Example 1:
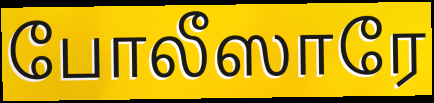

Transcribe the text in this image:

போலீஸாரே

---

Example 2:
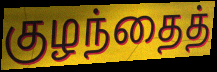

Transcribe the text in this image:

குழந்தைத்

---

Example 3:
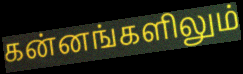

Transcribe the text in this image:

கன்னங்களிலும்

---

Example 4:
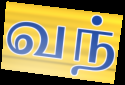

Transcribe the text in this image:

வந்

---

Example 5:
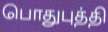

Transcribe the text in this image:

பொதுபுத்தி